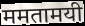
ममतामयी